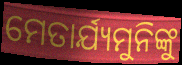
ମେତାର୍ଯ୍ୟମୁନିଙ୍କୁ